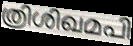
ത്രിശിഖമപി